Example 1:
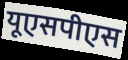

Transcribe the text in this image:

यूएसपीएस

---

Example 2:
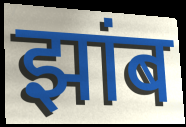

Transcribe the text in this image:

झांब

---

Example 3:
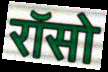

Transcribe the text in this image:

रॉसो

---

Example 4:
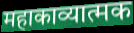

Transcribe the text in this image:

महाकाव्‍यात्‍मक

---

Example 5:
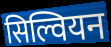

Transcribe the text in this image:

सिल्वियन